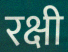
रक्षी